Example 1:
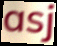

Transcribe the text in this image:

asj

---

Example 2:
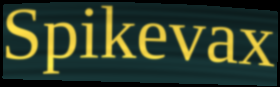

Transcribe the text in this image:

Spikevax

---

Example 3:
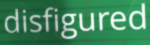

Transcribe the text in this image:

disfigured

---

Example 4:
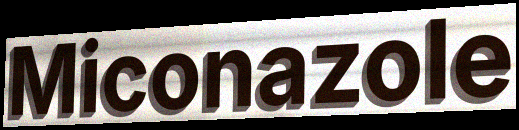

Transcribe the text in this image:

Miconazole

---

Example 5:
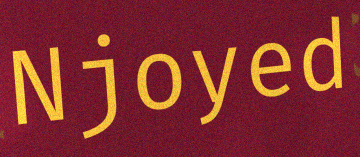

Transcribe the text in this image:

Njoyed